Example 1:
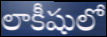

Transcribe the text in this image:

లాకీషులో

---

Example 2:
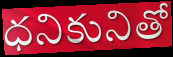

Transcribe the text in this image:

ధనికునితో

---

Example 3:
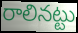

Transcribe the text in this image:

రాలినట్టు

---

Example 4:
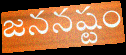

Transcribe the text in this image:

జననష్టం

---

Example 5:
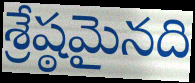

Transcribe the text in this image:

శ్రేష్ఠమైనది